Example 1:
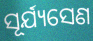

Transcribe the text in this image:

ସୂର୍ଯ୍ୟସେଣ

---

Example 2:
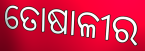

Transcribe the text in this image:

ତୋଷାଳୀର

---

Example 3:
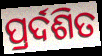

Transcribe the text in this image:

ପ୍ରର୍ଦଶିତ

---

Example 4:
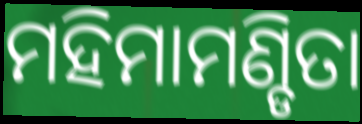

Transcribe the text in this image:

ମହିମାମଣ୍ଡିତା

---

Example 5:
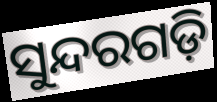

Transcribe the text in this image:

ସୁନ୍ଦରଗଡ଼ି